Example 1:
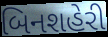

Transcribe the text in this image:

બિનશહેરી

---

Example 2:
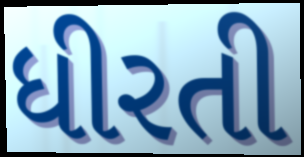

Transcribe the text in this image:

ધીરતી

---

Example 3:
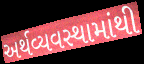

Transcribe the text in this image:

અર્થવ્યવસ્થામાંથી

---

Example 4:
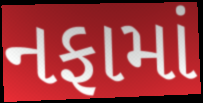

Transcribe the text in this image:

નફામાં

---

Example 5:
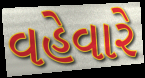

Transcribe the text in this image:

વહેવારે